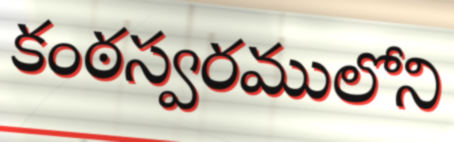
కంఠస్వరములోని